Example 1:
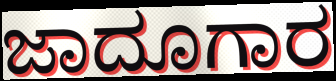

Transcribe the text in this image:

ಜಾದೂಗಾರ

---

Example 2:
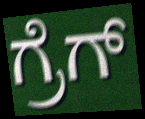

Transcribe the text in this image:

ಗ್ರೆಗ್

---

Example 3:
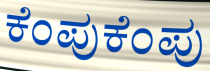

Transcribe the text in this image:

ಕೆಂಪುಕೆಂಪು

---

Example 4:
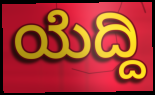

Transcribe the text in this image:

ಯೆದ್ದಿ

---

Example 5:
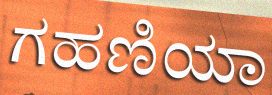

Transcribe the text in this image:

ಗಹಣಿಯಾ